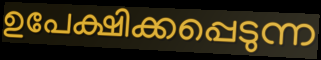
ഉപേക്ഷിക്കപ്പെടുന്ന